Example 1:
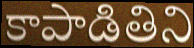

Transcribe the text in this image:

కాపాడితిని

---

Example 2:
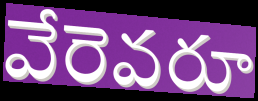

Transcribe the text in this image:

వేరెవరూ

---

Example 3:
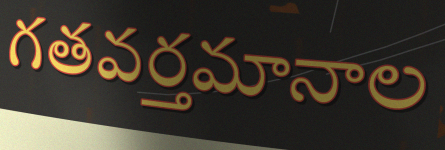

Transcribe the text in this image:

గతవర్తమానాల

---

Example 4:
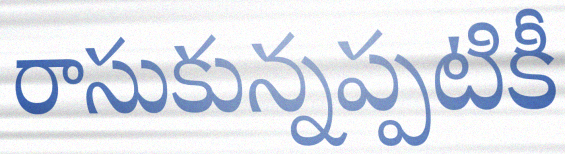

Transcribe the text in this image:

రాసుకున్నప్పటికీ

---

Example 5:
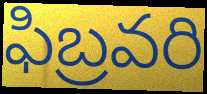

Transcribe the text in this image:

ఫిబ్రవరి